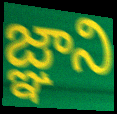
జ్ఞాని